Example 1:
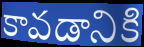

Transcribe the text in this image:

కావడానికి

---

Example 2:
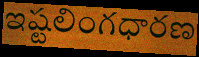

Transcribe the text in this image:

ఇష్టలింగధారణ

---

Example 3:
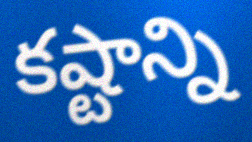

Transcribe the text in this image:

కష్టాన్ని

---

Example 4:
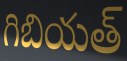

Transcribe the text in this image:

గిబియత్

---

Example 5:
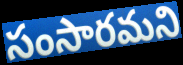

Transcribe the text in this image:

సంసారమని